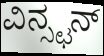
ವಿನ್ಸ್ಟನ್